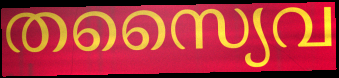
തസ്യൈവ